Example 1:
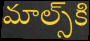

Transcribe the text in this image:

మాల్స్‌కి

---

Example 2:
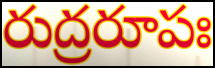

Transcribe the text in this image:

రుద్రరూపః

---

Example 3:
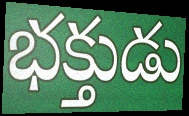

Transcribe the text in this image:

భక్తుడు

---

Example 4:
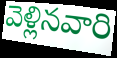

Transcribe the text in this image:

వెళ్లినవారి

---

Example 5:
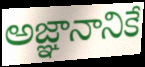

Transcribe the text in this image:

అజ్ఞానానికే